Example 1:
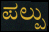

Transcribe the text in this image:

ಪಲ್ಪು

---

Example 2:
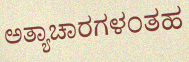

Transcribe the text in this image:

ಅತ್ಯಾಚಾರಗಳಂತಹ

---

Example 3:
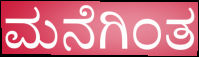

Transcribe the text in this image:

ಮನೆಗಿಂತ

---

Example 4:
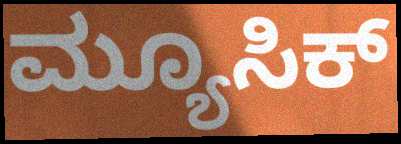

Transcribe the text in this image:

ಮ್ಯೂಸಿಕ್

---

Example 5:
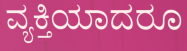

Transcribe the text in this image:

ವ್ಯಕ್ತಿಯಾದರೂ